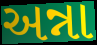
અન્ના